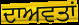
ਦਾਅਵਤਾਂ